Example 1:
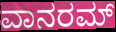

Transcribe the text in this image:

ವಾನರಮ್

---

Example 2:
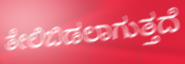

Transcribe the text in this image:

ತೇಲಿಬಿಡಲಾಗುತ್ತದೆ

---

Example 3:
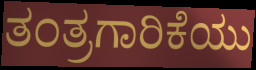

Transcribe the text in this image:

ತಂತ್ರಗಾರಿಕೆಯು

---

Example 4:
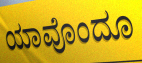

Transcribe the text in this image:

ಯಾವೊಂದೂ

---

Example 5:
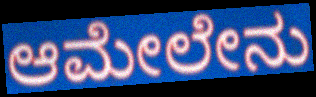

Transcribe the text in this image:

ಆಮೇಲೇನು